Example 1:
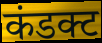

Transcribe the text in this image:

कंडक्ट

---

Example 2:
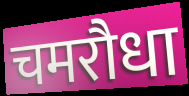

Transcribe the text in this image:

चमरौधा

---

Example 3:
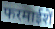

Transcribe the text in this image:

फरमाईशें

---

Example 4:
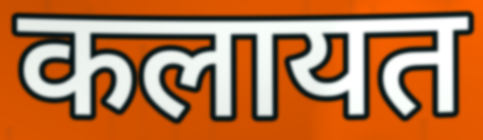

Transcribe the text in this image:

कलायत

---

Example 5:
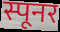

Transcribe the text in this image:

स्पूनर